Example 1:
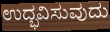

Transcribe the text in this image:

ಉದ್ಭವಿಸುವುದು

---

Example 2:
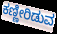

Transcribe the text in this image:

ಕಣ್ಣೀರಿಡುವ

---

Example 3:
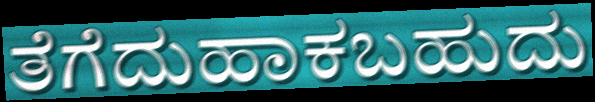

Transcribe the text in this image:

ತೆಗೆದುಹಾಕಬಹುದು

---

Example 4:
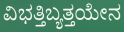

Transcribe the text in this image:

ವಿಭತ್ತಿಬ್ಯತ್ತಯೇನ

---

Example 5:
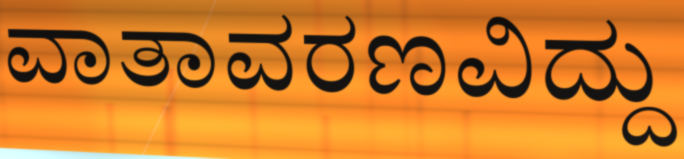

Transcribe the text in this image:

ವಾತಾವರಣವಿದ್ದು